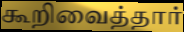
கூறிவைத்தார்